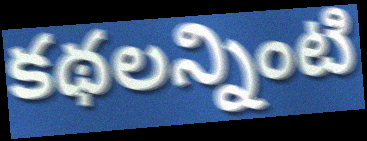
కథలన్నింటి